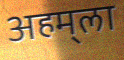
अहम्‌ला